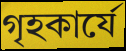
গৃহকার্যে